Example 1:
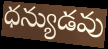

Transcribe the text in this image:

ధన్యుడవు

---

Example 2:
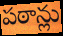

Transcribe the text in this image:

పఠాన్లు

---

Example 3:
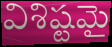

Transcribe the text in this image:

విశిష్టమై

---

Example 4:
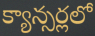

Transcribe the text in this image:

క్యాన్సర్లలో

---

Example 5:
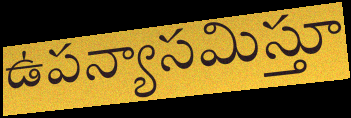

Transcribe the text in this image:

ఉపన్యాసమిస్తూ